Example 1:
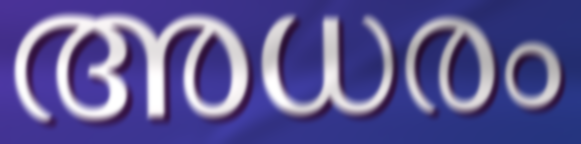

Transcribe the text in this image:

അധരം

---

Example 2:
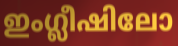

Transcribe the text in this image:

ഇംഗ്ലീഷിലോ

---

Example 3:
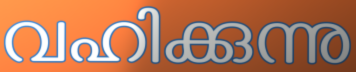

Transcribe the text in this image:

വഹിക്കുന്നു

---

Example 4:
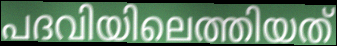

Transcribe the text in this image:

പദവിയിലെത്തിയത്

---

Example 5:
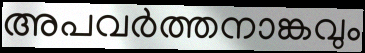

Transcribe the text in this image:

അപവർത്തനാങ്കവും